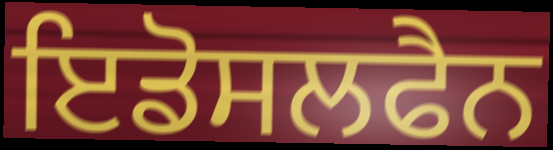
ਇਡੋਸਲਫੈਨ